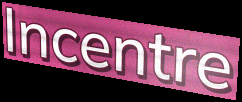
Incentre